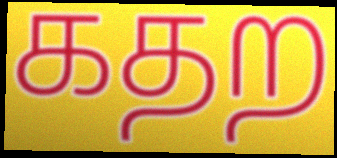
கதற